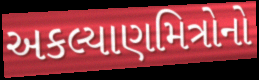
અકલ્યાણમિત્રોનો